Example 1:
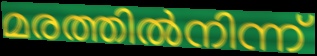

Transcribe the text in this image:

മരത്തിൽനിന്ന്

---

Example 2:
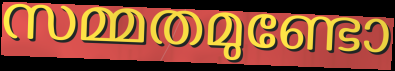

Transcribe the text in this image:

സമ്മതമുണ്ടോ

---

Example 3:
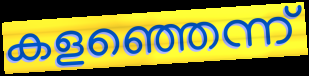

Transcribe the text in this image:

കളഞ്ഞെന്ന്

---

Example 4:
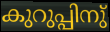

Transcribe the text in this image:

കുറുപ്പിനു്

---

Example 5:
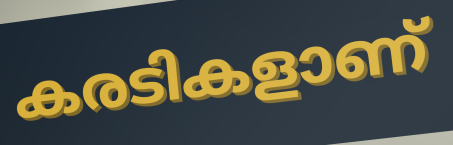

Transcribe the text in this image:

കരടികളാണ്